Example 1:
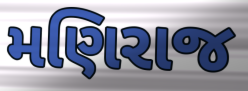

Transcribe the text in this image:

મણિરાજ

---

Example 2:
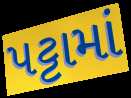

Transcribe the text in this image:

પટ્ટામાં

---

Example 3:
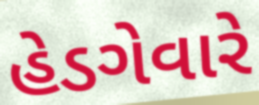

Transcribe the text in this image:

હેડગેવારે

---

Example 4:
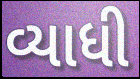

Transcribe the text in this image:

વ્યાધી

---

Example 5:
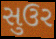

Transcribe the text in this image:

સુઉર